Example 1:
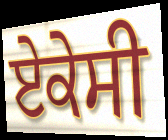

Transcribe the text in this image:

ਏਕੇਸੀ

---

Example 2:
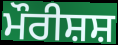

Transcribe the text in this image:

ਮੌਰੀਸ਼ਸ਼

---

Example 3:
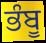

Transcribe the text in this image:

ਭੰਬੂ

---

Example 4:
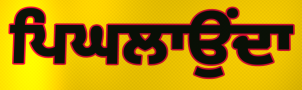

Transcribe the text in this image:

ਪਿਘਲਾਉਂਦਾ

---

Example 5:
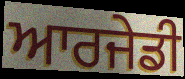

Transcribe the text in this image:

ਆਰਜੇਡੀ